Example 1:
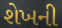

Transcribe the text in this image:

શેખની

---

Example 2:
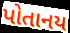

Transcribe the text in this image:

પોતાનય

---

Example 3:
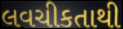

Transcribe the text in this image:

લવચીકતાથી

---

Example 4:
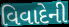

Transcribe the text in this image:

વિવાદેની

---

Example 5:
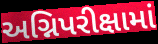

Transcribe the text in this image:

અગ્નિપરીક્ષામાં